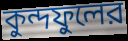
কুন্দফুলের